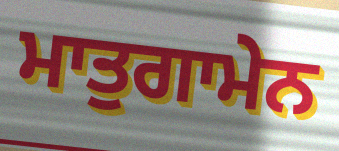
ਮਾਤੁਗਾਮੇਨ